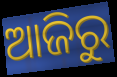
ଆଜିରୁ